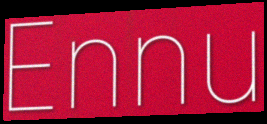
Ennu